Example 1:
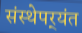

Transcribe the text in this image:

संस्थेपर्यंत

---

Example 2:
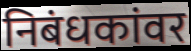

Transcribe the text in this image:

निबंधकांवर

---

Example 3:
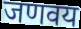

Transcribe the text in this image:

जणवय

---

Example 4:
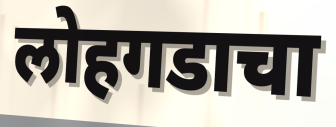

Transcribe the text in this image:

लोहगडाचा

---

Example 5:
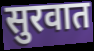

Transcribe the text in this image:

सुरवात